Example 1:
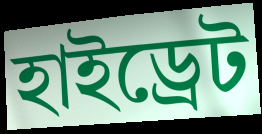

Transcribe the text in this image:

হাইড্রেট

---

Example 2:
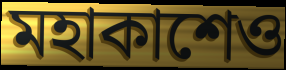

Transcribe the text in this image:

মহাকাশেও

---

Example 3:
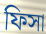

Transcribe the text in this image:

ফিসা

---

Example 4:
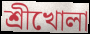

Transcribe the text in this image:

শ্রীখোলা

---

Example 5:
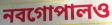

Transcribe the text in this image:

নবগোপালও